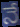
నే